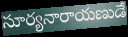
సూర్యనారాయణుడే